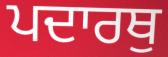
ਪਦਾਰਥੁ